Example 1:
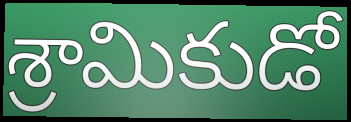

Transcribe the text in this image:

శ్రామికుడో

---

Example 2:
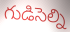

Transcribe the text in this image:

గుడిసెల్ని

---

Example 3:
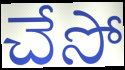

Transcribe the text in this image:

చేసో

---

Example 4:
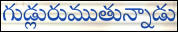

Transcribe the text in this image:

గుడ్లురుముతున్నాడు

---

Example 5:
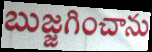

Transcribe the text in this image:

బుజ్జగించాను